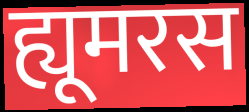
ह्यूमरस